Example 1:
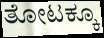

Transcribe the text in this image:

ತೋಟಕ್ಕೂ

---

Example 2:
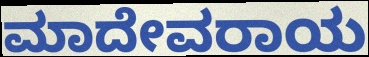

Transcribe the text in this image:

ಮಾದೇವರಾಯ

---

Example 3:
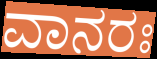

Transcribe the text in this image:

ವಾನರಃ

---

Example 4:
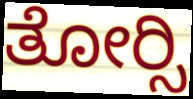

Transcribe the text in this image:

ತೋರ್‍ಸಿ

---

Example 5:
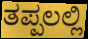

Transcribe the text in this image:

ತಪ್ಪಲಲ್ಲಿ